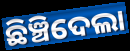
ଛିଞ୍ଚିଦେଲା